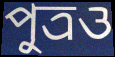
পুত্রও